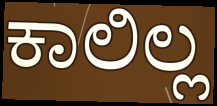
ಕಾಲಿಲ್ಲ